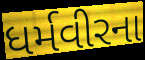
ધર્મવીરના